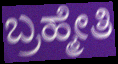
ಬ್ರಹ್ಮೇತಿ